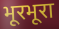
भूरभूरा